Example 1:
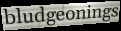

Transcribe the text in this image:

bludgeonings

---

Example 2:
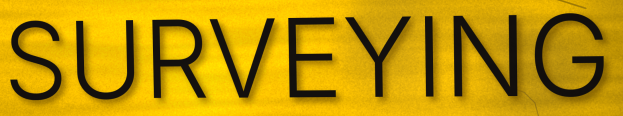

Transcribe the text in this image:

SURVEYING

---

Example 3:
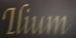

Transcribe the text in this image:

Ilium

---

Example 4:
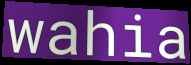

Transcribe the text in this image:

wahia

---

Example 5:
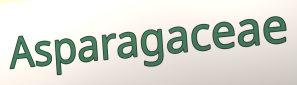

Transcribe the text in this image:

Asparagaceae